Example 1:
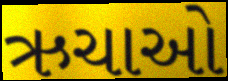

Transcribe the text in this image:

ઋચાઓ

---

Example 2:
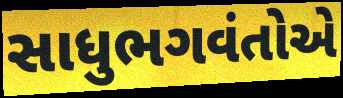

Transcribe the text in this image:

સાધુભગવંતોએ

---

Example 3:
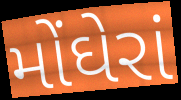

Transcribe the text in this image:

મોંઘેરાં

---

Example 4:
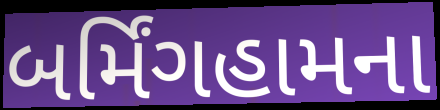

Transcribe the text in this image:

બર્મિંગહામના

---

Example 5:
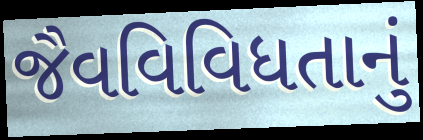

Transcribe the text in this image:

જૈવવિવિધતાનું